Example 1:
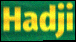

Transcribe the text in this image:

Hadji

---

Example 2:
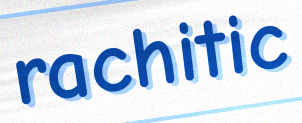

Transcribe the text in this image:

rachitic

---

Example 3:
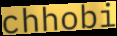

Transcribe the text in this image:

chhobi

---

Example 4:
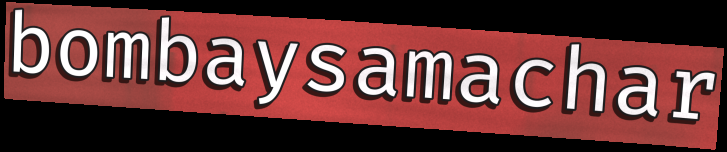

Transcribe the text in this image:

bombaysamachar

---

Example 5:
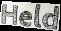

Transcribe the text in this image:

Held